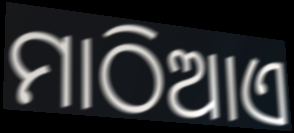
ମାଠିଆଏ